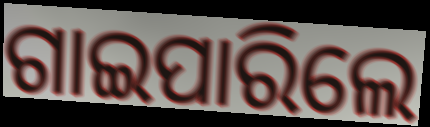
ଗାଇପାରିଲେ